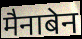
मैनाबेन